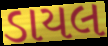
ડાયલ